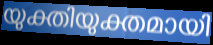
യുക്തിയുക്തമായി